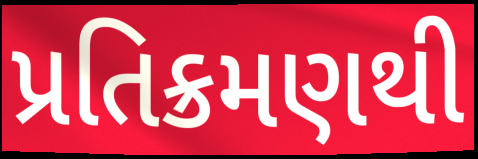
પ્રતિક્રમણથી